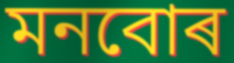
মনবোৰ